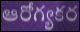
ఆరోగ్యకర